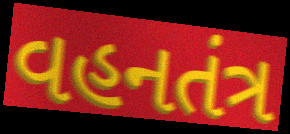
વહનતંત્ર